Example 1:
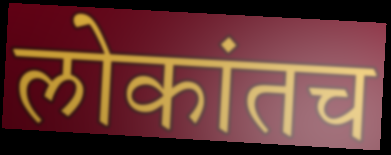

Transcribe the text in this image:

लोकांतच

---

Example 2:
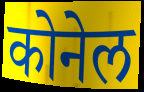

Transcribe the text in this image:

कोनेल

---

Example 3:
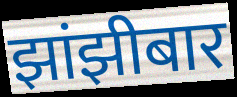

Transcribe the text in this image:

झांझीबार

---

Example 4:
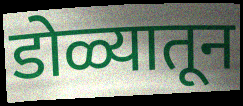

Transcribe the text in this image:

डोळ्यातून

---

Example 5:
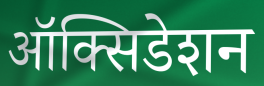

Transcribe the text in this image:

ऑक्सिडेशन